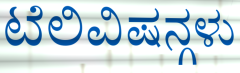
ಟೆಲಿವಿಷನ್ಗಳು